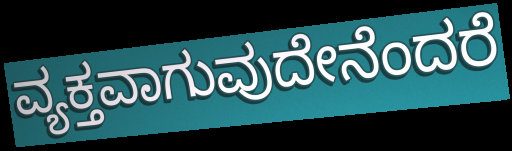
ವ್ಯಕ್ತವಾಗುವುದೇನೆಂದರೆ